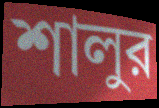
শালুর